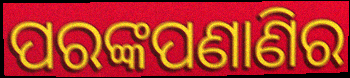
ପରଙ୍କପଣାଣିର